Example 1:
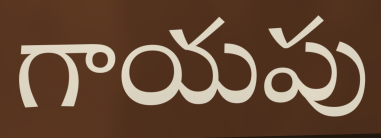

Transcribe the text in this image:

గాయపు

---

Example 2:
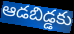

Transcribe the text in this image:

ఆడబిడ్డకు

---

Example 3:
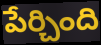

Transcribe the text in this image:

పేర్చింది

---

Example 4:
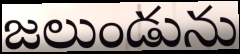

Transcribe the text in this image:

జలుండును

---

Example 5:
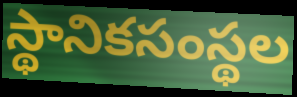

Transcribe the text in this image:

స్థానికసంస్థల